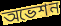
অভেশন